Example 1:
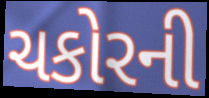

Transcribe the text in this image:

ચકોરની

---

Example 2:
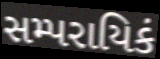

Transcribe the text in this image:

સમ્પરાયિકં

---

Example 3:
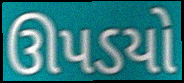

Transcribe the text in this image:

ઊપડયો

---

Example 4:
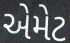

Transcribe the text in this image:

એમેટ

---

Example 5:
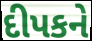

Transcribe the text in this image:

દીપકને